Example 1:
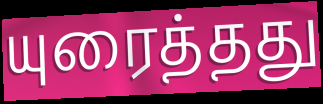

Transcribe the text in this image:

யுரைத்தது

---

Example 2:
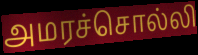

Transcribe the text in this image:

அமரச்சொல்லி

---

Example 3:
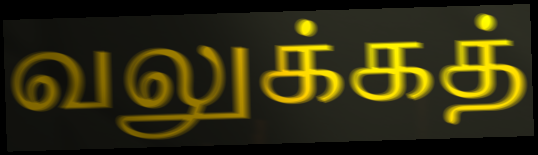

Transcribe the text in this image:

வலுக்கத்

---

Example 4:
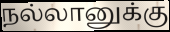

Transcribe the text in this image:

நல்லானுக்கு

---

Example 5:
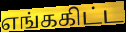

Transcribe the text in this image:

எங்ககிட்ட